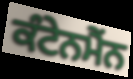
ਕੰਟੇਨਮੈਂਨ